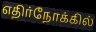
எதிர்நோக்கில்